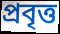
প্ৰবৃত্ত